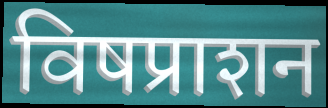
विषप्राशन